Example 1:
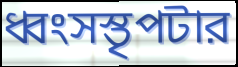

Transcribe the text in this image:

ধ্বংসস্তৃপটার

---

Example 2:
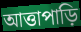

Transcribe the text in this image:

আত্তাপাড়ি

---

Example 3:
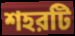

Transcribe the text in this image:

শহরটি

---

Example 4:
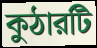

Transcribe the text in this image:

কুঠারটি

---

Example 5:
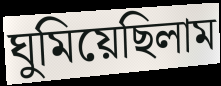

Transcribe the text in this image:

ঘুমিয়েছিলাম